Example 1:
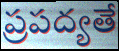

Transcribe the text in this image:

ప్రపద్యతే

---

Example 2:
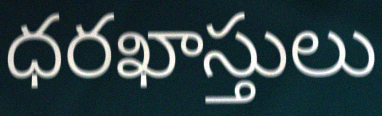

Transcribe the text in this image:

ధరఖాస్తులు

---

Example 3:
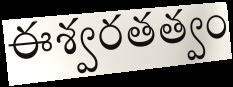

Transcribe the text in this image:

ఈశ్వరతత్వం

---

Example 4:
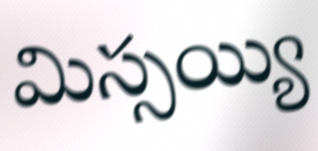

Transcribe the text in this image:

మిస్సయ్యి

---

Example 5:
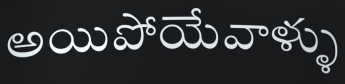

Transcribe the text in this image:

అయిపోయేవాళ్ళు